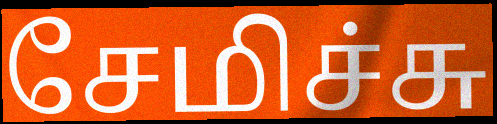
சேமிச்சு